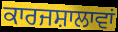
ਕਾਰਜਸ਼ਾਲਾਵਾਂ